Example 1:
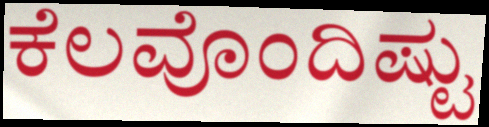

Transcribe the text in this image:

ಕೆಲವೊಂದಿಷ್ಟು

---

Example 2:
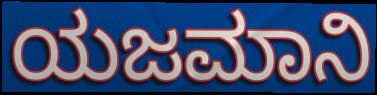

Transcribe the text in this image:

ಯಜಮಾನಿ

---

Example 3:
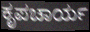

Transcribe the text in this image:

ಕೃಪಚಾರ್ಯ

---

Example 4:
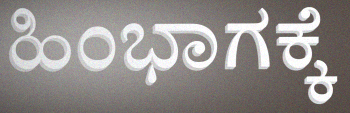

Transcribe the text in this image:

ಹಿಂಭಾಗಕ್ಕೆ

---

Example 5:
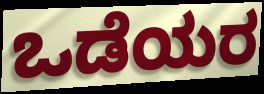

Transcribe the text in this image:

ಒಡೆಯರ